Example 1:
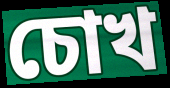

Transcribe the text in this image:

চোখ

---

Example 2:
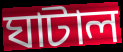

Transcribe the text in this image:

ঘাটাল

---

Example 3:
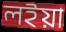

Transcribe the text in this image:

লইয়া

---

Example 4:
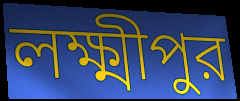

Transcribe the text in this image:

লক্ষ্মীপুর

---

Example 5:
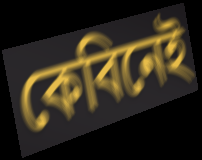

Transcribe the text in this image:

কেবিনেই